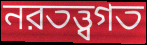
নরতত্ত্বগত